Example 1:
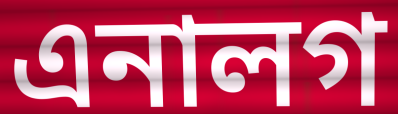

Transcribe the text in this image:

এনালগ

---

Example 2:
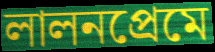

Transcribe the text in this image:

লালনপ্রেমে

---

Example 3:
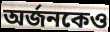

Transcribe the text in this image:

অর্জনকেও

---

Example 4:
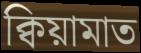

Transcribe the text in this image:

ক্বিয়ামাত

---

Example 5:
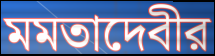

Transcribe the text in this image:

মমতাদেবীর